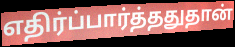
எதிர்ப்பார்த்ததுதான்